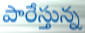
పారేస్తున్న